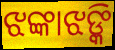
ଝଙ୍କାଝଙ୍କି